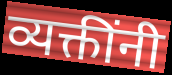
व्यक्तींनी